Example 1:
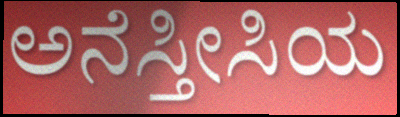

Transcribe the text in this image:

ಅನೆಸ್ತೀಸಿಯ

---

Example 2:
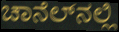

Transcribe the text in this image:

ಚಾನೆಲ್‌ನಲ್ಲಿ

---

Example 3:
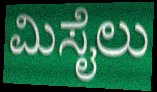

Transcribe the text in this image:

ಮಿಸೈಲು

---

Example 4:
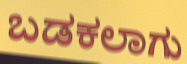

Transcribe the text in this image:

ಬಡಕಲಾಗು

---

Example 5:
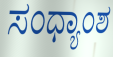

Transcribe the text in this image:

ಸಂಧ್ಯಾಂಶ